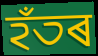
হঁতৰ